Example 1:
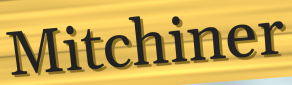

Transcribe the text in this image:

Mitchiner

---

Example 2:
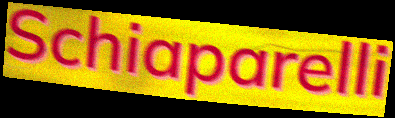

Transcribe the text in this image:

Schiaparelli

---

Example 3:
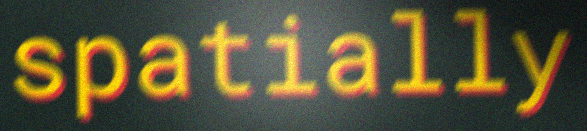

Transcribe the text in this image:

spatially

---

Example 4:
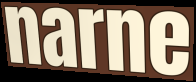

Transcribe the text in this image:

narne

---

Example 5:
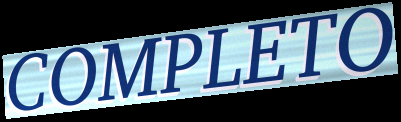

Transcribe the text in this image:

COMPLETO